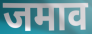
जमाव